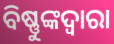
ବିଷ୍ଣୁଙ୍କଦ୍ୱାରା